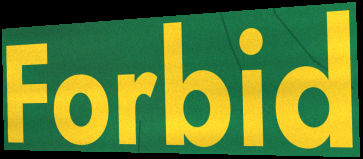
Forbid